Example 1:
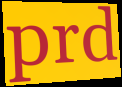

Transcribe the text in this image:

prd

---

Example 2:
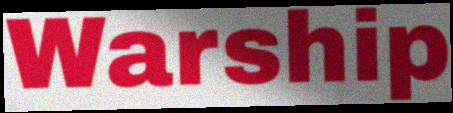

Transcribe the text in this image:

Warship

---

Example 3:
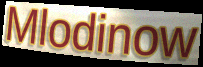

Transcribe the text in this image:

Mlodinow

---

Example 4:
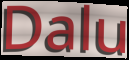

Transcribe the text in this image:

Dalu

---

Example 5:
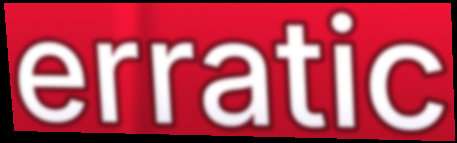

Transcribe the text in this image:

erratic